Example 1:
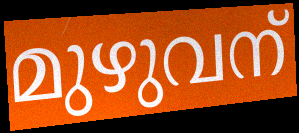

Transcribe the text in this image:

മുഴുവന്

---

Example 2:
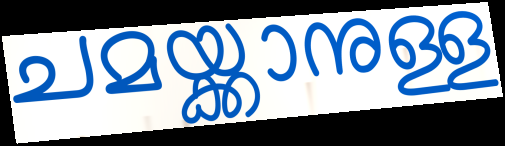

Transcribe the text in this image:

ചമയ്ക്കാനുള്ള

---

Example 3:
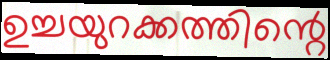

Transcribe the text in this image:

ഉച്ചയുറക്കത്തിന്റെ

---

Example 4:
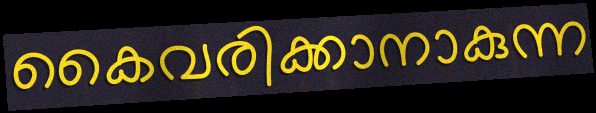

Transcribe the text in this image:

കൈവരിക്കാനാകുന്ന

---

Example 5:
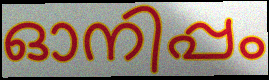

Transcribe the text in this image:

ഓനിപ്പം